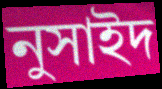
নুসাইদ